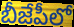
బీజేపీలో